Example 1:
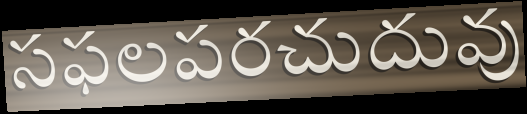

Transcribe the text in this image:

సఫలపరచుదువు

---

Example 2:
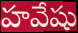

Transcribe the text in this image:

హవేషు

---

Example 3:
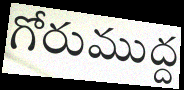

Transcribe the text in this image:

గోరుముద్ద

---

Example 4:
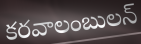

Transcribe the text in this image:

కరవాలంబులన్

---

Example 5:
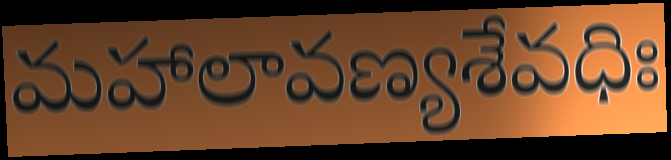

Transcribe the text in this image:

మహాలావణ్యశేవధిః